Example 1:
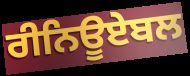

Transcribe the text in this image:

ਰੀਨਿਊਏਬਲ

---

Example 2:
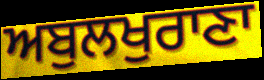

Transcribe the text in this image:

ਅਬੁਲਖੁਰਾਣਾ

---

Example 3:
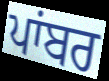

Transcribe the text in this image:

ਪਾਂਬਰ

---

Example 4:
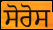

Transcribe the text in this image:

ਸੋਰੋਸ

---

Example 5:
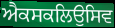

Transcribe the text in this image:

ਐਕਸਕਲਿਉਸਿਵ